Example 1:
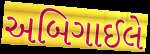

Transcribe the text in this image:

અબિગાઈલે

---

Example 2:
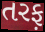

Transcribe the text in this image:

તરફ઼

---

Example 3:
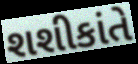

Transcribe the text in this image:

શશીકાંતે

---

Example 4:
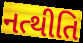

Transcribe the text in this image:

નત્થીતિ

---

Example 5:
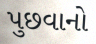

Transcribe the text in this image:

પુછવાનો